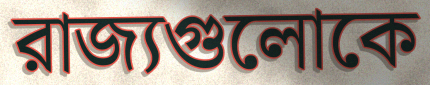
রাজ্যগুলোকে